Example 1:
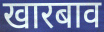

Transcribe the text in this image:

खारबाव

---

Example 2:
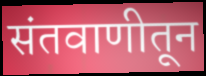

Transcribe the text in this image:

संतवाणीतून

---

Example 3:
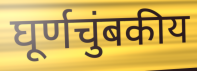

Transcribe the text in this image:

घूर्णचुंबकीय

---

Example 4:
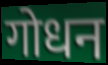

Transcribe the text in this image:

गोधन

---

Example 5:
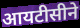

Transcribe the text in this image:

आयटीसीने